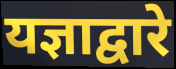
यज्ञाद्वारे